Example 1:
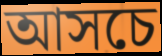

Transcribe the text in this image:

আসচে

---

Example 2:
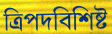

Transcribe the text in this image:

ত্রিপদবিশিষ্ট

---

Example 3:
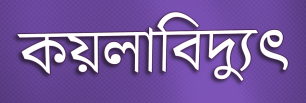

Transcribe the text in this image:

কয়লাবিদ্যুৎ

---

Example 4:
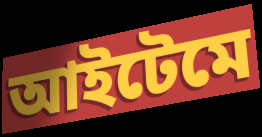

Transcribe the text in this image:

আইটেমে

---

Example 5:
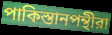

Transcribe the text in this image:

পাকিস্তানপন্থীরা